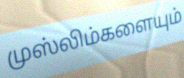
முஸ்லிம்களையும்